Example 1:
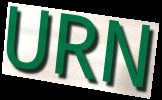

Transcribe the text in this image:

URN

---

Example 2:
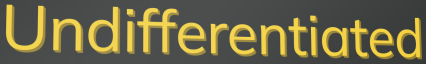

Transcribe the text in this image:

Undifferentiated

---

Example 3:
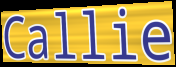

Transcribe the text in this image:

Callie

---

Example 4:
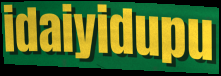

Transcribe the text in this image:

idaiyidupu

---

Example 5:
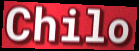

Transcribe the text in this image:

Chilo